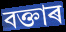
বক্তাৰ